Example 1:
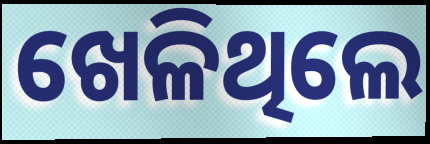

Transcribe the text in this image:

ଖେଳିଥିଲେ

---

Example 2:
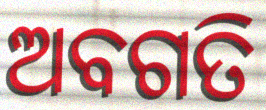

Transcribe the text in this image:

ଅବଗତି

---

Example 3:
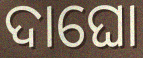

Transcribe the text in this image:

ଦାଘୋ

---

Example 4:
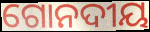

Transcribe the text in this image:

ଗୋନଦୀୟ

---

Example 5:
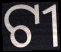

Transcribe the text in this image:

ଟୀ